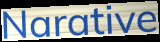
Narative